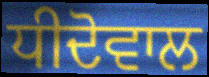
ਧੀਦੋਵਾਲ